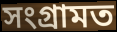
সংগ্ৰামত